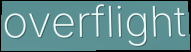
overflight